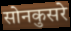
सोनकुसरे